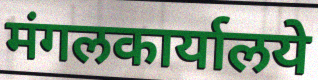
मंगलकार्यालये